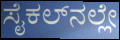
ಸೈಕಲ್‌ನಲ್ಲೇ